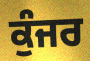
ਕੁੰਜਰ